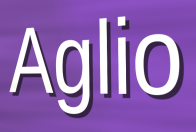
Aglio